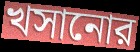
খসানোর